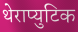
थेराप्युटिक